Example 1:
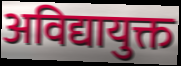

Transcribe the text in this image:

अविद्यायुक्त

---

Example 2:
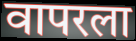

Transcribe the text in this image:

वापरला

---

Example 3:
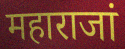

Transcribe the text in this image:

महाराजां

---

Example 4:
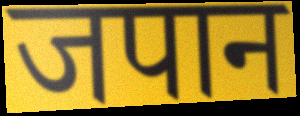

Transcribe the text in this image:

जपान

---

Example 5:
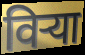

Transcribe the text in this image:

विऱ्या